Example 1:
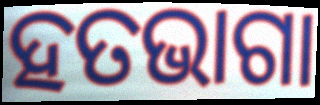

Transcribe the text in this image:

ହତଭାଗା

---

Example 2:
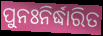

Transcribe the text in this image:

ପୁନଃନିର୍ଦ୍ଧାରିତ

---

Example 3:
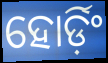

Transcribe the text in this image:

ହୋର୍ଡ଼ିଂ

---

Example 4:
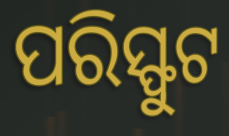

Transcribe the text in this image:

ପରିସ୍ଫୁଟ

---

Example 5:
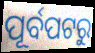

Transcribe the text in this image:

ପୂର୍ବପଟରୁ